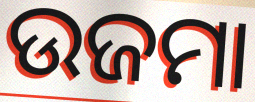
ଉଜମା